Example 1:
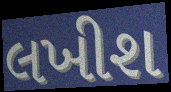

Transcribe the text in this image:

લખીશ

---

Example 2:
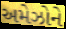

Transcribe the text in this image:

અમેઝોને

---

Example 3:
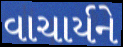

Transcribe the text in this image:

વાચાર્યને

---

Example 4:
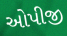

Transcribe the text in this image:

ઓપીજી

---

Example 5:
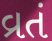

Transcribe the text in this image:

વ્રતં